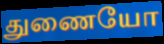
துணையோ